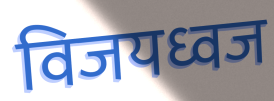
विजयध्वज